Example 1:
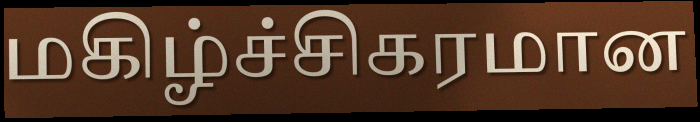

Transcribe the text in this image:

மகிழ்ச்சிகரமான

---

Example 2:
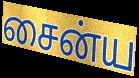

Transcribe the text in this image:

சைன்ய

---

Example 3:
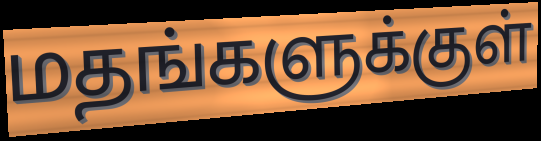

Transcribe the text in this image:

மதங்களுக்குள்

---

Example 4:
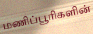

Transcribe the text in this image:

மணிப்பூரிகளின்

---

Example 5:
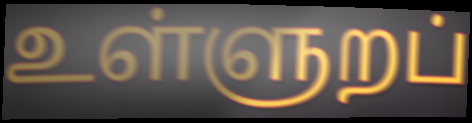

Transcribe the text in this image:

உள்ளுறப்